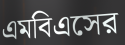
এমবিএসের